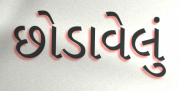
છોડાવેલું